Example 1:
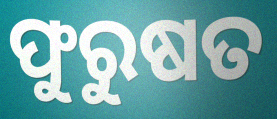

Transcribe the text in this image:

ଫୁରୁଷତ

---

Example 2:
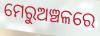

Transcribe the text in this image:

ମେରୁଅଞ୍ଚଳରେ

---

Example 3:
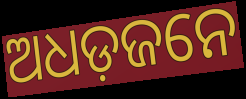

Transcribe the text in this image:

ଅଧଡ଼ଜନେ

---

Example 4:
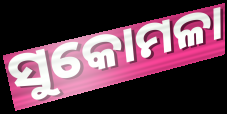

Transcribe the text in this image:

ସୁକୋମଳା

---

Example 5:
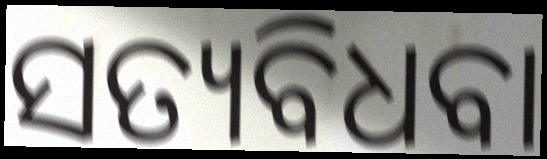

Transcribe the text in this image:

ସତ୍ୟବିଧବା